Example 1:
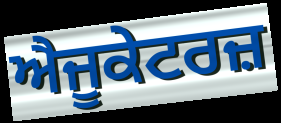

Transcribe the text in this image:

ਐਜੂਕੇਟਰਜ਼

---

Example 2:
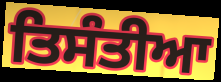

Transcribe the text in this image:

ਤਿਸੰਤੀਆ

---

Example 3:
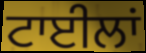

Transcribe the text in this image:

ਟਾਈਲਾਂ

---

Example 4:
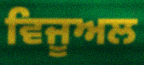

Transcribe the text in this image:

ਵਿਜੂਅਲ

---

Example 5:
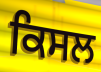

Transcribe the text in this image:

ਕਿਸਲ